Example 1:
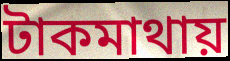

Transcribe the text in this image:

টাকমাথায়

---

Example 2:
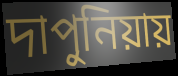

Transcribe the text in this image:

দাপুনিয়ায়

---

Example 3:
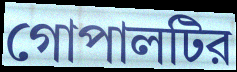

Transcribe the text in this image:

গোপালটির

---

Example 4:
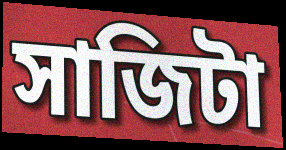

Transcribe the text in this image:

সাজিটা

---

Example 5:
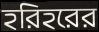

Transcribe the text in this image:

হরিহরের